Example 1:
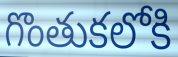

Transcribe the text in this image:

గొంతుకలోకి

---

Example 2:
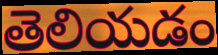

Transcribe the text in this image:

తెలియడం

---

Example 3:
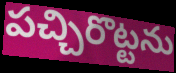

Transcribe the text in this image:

పచ్చిరొట్టను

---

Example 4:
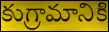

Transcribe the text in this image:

కుగ్రామానికి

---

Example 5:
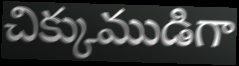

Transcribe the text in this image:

చిక్కుముడిగా